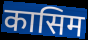
कासिम